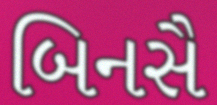
બિનસૈ